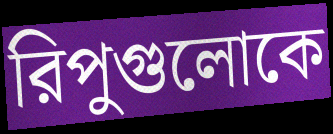
রিপুগুলোকে